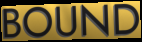
BOUND